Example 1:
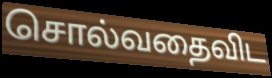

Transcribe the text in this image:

சொல்வதைவிட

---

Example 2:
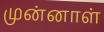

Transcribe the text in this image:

முன்னாள்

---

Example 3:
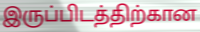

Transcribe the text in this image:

இருப்பிடத்திற்கான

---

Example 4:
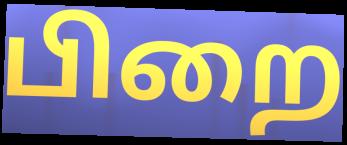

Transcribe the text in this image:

பிறை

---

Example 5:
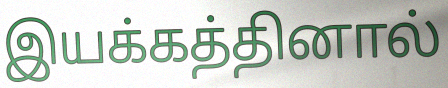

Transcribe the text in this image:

இயக்கத்தினால்